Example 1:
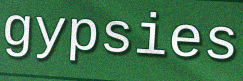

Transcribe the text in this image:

gypsies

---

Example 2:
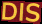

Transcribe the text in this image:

DIS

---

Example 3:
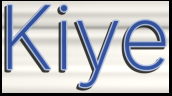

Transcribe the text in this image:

Kiye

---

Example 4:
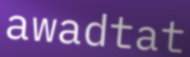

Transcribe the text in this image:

awadtat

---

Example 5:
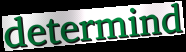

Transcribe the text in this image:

determind